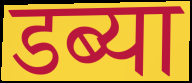
डब्या